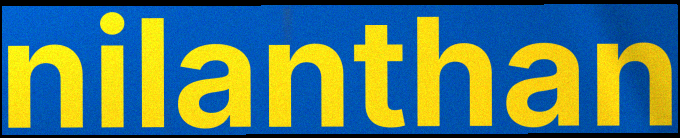
nilanthan